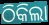
ଠିକିଲା